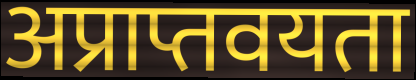
अप्राप्तवयता